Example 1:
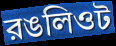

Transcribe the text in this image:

রঙলিওট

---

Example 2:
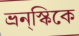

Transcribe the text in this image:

ভ্রন্‌স্কিকে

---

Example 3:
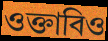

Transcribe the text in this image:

ওক্তাবিও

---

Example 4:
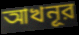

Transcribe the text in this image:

আখনূর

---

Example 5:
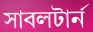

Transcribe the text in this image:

সাবলটার্ন